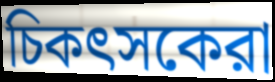
চিকৎসকেরা